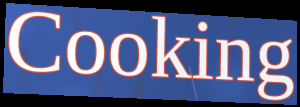
Cooking